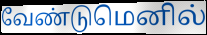
வேண்டுமெனில்